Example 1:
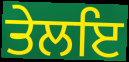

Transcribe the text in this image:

ਤੇਲਇ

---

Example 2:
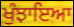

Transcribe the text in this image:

ਖੁੰਝਾਇਆ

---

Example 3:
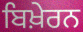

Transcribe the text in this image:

ਬਿਖ਼ੇਰਨ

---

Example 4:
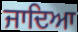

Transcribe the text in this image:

ਜਾਦਿਆ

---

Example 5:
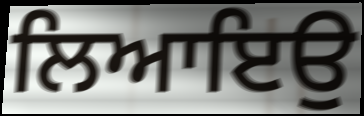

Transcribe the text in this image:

ਲਿਆਇਉ